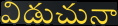
విడుచునా